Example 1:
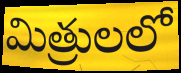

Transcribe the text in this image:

మిత్రులలో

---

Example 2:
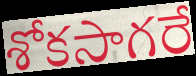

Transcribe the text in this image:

శోకసాగరే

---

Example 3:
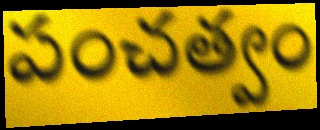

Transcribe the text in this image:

పంచత్వం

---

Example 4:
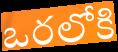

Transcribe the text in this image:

ఒరలోకి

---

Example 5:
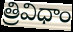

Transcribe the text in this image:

త్రివిధాం